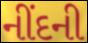
નીંદની